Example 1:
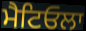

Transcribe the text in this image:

ਮੈਟਿਓਲਾ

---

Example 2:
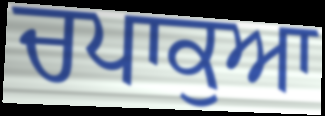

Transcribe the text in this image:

ਚਪਾਕੁਆ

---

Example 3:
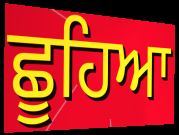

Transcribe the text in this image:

ਛੂਹਿਆ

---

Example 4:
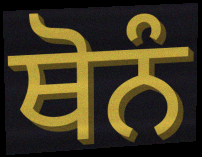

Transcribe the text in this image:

ਥੋਨੰ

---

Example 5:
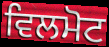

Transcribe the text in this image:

ਵਿਲਮੋਟ